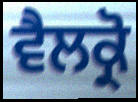
ਵੈਲਕ੍ਰੋ